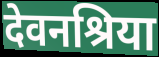
देवनश्रिया